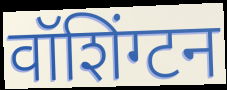
वॉशिंग्टन